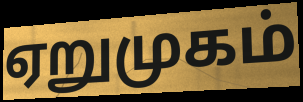
ஏறுமுகம்